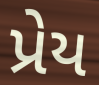
પ્રેય